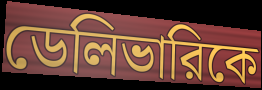
ডেলিভারিকে